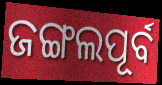
ଜଙ୍ଗଲପୂର୍ବ